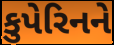
કુપેરિનને